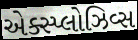
એક્સ્પ્લોઝિવ્સ